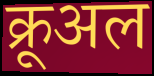
क्रूअल